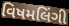
વિષમલિંગી